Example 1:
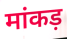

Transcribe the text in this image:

मांकड़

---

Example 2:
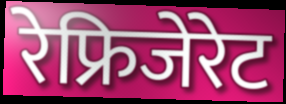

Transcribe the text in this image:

रेफ्रिजेरेट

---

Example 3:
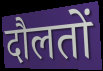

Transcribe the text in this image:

दौलतों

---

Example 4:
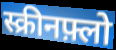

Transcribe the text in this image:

स्क्रीनफ़्लो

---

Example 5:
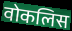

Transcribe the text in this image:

वोकलिस